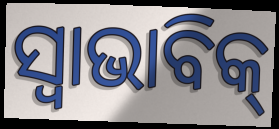
ସ୍ଵାଭାବିକ୍